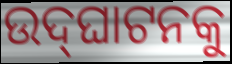
ଉଦ୍‌ଘାଟନକୁ